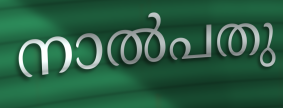
നാൽപതു